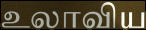
உலாவிய